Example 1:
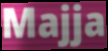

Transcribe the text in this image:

Majja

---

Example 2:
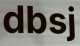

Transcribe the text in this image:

dbsj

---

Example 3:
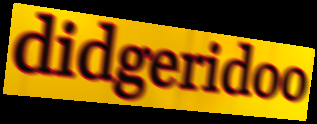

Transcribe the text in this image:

didgeridoo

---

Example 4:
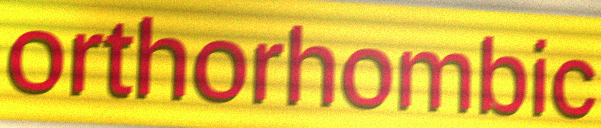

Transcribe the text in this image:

orthorhombic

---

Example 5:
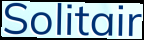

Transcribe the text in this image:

Solitair